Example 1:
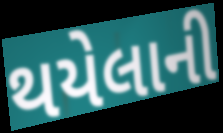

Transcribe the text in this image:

થયેલાની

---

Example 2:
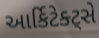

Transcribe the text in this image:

આર્કિટેક્ટ્સે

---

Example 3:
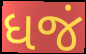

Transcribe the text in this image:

ધજં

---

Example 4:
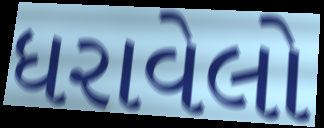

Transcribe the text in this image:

ધરાવેલો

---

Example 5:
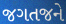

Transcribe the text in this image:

જગતજને